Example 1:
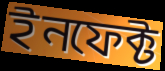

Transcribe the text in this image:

ইনফেক্ট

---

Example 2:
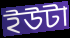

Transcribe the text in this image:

ইউটা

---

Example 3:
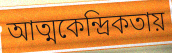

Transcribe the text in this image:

আত্মকেন্দ্রিকতায়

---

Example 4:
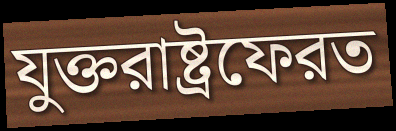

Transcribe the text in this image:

যুক্তরাষ্ট্রফেরত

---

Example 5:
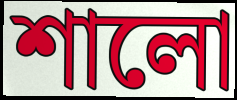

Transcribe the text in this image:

শালো